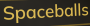
Spaceballs